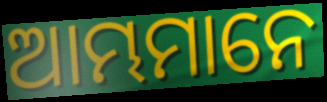
ଆମ୍ଭମାନେ